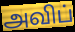
அவிப்